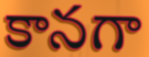
కానగా